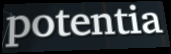
potentia